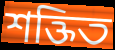
শক্তিত